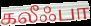
கலீஃபா